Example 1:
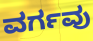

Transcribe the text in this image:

ವರ್ಗವು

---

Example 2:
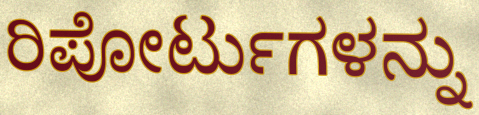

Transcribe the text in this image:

ರಿಪೋರ್ಟುಗಳನ್ನು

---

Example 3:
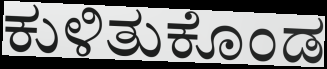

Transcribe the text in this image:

ಕುಳಿತುಕೊಂಡ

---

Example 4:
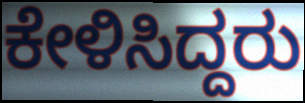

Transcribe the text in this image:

ಕೇಳಿಸಿದ್ದರು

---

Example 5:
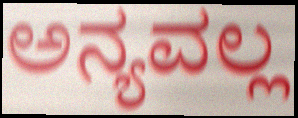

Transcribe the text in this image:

ಅನ್ಯವಲ್ಲ